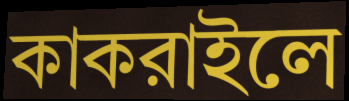
কাকরাইলে